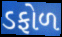
ડફોળ